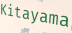
Kitayama